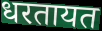
धरतायत